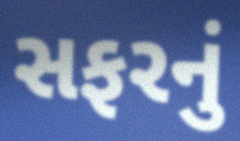
સફરનું